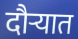
दौर्‍यात